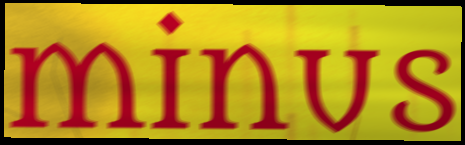
minus